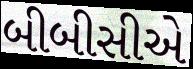
બીબીસીએ